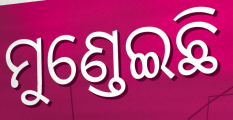
ମୁଣ୍ଡେଇଛି